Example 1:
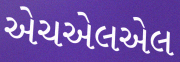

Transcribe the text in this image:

એચએલએલ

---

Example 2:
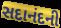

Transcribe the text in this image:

સદાનંદની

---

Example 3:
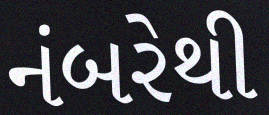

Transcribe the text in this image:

નંબરેથી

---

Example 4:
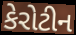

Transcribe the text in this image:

કેરોટીન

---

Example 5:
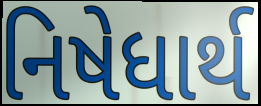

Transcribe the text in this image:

નિષેધાર્થ